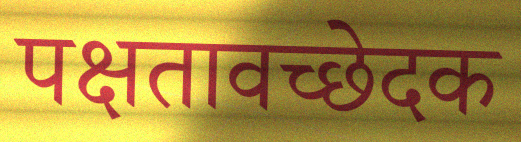
पक्षतावच्छेदक